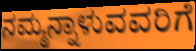
ನಮ್ಮನ್ನಾಳುವವರಿಗೆ